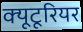
क्यूटूरियर